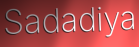
Sadadiya